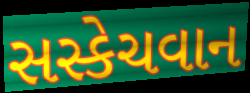
સસ્કેચવાન